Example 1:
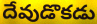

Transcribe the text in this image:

దేవుడొకడు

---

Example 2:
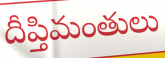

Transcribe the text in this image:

దీప్తిమంతులు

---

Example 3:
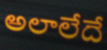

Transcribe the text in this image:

అలాలేదే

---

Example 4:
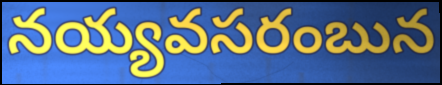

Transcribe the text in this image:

నయ్యవసరంబున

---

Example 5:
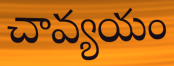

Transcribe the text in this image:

చావ్యయం